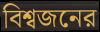
বিশ্বজনের